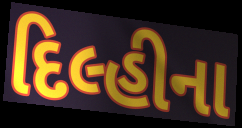
દિલ્હીના